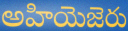
అహియెజెరు